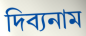
দিব্যনাম